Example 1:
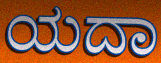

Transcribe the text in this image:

ಯದಾ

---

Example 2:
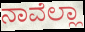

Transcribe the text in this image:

ನಾವೆಲ್ಲಾ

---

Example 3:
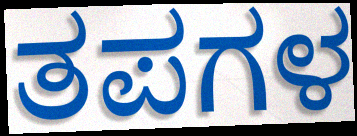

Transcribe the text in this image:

ತಪಗಳ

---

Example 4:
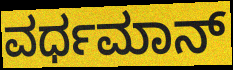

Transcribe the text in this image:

ವರ್ಧಮಾನ್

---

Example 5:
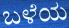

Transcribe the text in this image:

ಬಳೆಯ